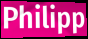
Philipp